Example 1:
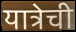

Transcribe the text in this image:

यात्रेची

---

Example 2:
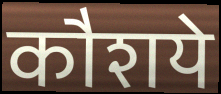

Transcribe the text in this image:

कौशये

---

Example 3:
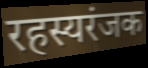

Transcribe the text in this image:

रहस्यरंजक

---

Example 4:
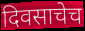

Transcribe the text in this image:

दिवसाचेच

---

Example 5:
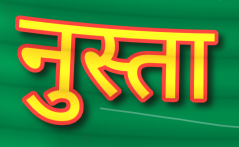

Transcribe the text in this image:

नुस्ता